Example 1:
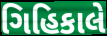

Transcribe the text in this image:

ગિહિકાલે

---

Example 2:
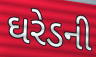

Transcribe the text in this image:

ઘરેડની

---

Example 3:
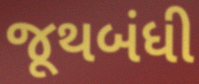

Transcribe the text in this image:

જૂથબંધી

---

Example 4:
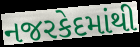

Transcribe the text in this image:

નજરકેદમાંથી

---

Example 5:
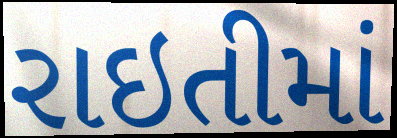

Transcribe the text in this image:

રાઇતીમાં